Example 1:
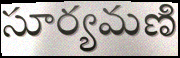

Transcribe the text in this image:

సూర్యమణి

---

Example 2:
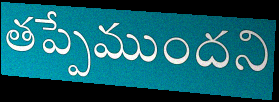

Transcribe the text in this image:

తప్పేముందని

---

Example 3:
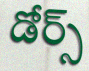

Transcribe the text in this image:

డోర్స్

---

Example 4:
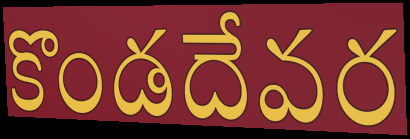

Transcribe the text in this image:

కొండదేవర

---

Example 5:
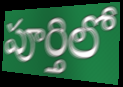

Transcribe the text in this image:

పూర్తిలో